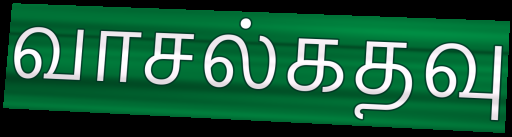
வாசல்கதவு